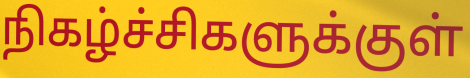
நிகழ்ச்சிகளுக்குள்